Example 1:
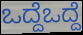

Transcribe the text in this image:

ಒದ್ದೆಒದ್ದೆ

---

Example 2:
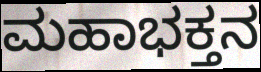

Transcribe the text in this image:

ಮಹಾಭಕ್ತನ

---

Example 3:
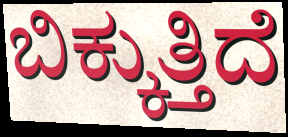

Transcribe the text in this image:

ಬಿಕ್ಕುತ್ತಿದೆ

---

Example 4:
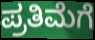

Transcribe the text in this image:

ಪ್ರತಿಮೆಗೆ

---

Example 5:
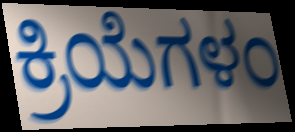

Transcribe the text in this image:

ಕ್ರಿಯೆಗಳಂ